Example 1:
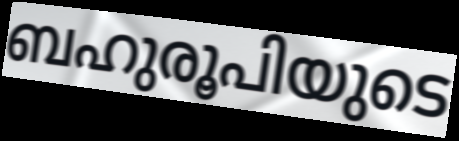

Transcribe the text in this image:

ബഹുരൂപിയുടെ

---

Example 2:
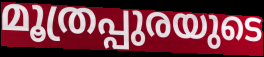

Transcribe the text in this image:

മൂത്രപ്പുരയുടെ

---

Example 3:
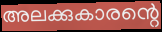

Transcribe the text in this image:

അലക്കുകാരന്റെ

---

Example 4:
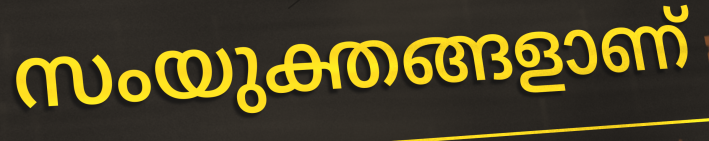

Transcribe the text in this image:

സംയുക്തങ്ങളാണ്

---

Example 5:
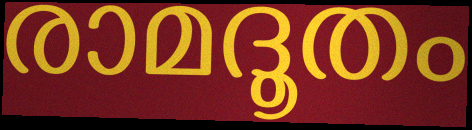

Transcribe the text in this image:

രാമദൂതം